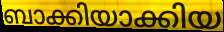
ബാക്കിയാക്കിയ